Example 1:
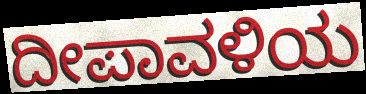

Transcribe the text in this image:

ದೀಪಾವಳಿಯ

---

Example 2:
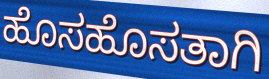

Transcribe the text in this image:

ಹೊಸಹೊಸತಾಗಿ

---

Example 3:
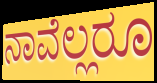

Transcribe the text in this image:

ನಾವೆಲ್ಲರೂ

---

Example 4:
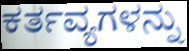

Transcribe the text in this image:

ಕರ್ತವ್ಯಗಳನ್ನು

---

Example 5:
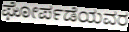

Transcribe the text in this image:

ಘೋರ್ಪಡೆಯವರ